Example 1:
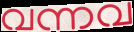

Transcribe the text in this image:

വന്നവ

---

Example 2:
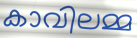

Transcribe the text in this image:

കാവിലമ്മ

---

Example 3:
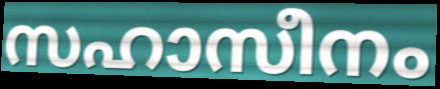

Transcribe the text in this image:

സഹാസീനം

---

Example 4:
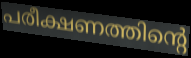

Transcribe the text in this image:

പരീക്ഷണത്തിന്റെ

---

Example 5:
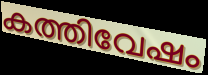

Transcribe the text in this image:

കത്തിവേഷം